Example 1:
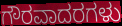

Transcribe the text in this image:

ಗೌರವಾದರಗಳು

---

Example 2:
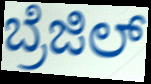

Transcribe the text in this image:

ಬ್ರೆಜಿಲ್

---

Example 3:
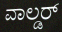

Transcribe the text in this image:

ವಾಲ್ಡರ್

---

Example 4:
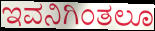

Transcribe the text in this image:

ಇವನಿಗಿಂತಲೂ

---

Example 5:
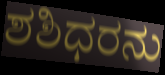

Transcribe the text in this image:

ಶಶಿಧರನು